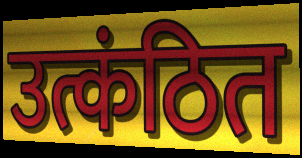
उत्कंठित